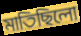
মাতিছিলো